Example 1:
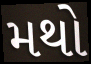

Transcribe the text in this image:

મથો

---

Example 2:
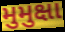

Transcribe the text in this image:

મુમુક્ષા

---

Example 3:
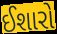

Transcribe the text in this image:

ઈશારો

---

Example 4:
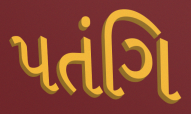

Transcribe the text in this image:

પતંગિ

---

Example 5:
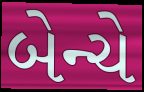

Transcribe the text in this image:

બેન્ચે